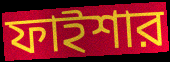
ফাইশার